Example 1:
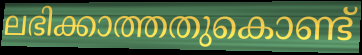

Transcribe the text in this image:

ലഭിക്കാത്തതുകൊണ്ട്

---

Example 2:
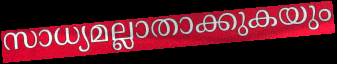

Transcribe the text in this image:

സാധ്യമല്ലാതാക്കുകയും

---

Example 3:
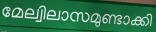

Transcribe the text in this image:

മേല്വിലാസമുണ്ടാക്കി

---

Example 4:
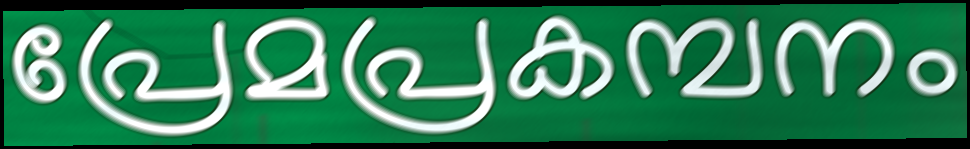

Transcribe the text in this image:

പ്രേമപ്രകമ്പനം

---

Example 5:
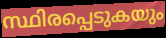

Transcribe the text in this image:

സ്ഥിരപ്പെടുകയും